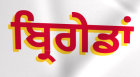
ਬ੍ਰਿਗੇਡਾਂ